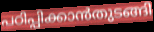
പഠിപ്പിക്കാൻതുടങ്ങി